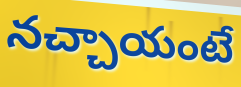
నచ్చాయంటే